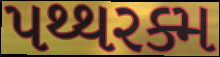
પથ્થરક્મ